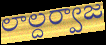
లాల్దర్వాజ